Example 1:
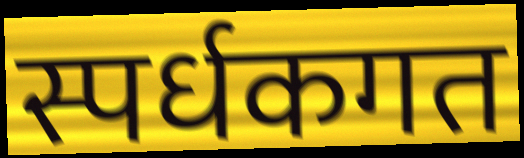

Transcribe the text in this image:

स्पर्धकगत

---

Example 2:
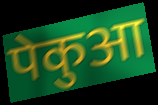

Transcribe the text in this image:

पेकुआ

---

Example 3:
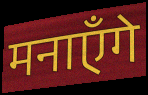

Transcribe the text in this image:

मनाएँगे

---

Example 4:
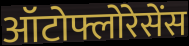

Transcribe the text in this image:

ऑटोफ्लोरेसेंस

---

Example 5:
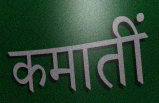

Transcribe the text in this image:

कमातीं